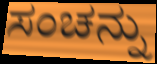
ಸಂಚನ್ನು